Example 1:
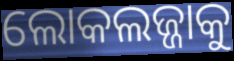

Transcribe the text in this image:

ଲୋକଲଜ୍ଜାକୁ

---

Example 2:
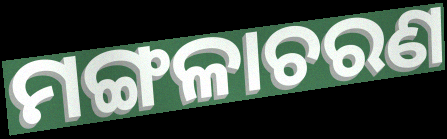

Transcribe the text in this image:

ମଙ୍ଗଳାଚରଣ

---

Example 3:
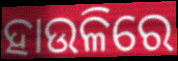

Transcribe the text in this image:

ହାଉଳିରେ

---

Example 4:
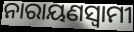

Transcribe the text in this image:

ନାରାୟଣସ୍ଵାମୀ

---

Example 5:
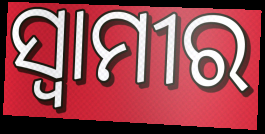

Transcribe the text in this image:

ସ୍ଵାମୀର